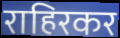
राहिरकर